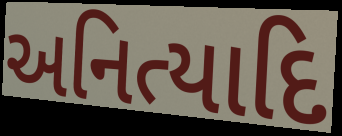
અનિત્યાદિ